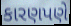
કારણપણે